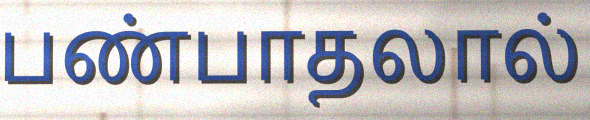
பண்பாதலால்